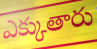
ఎక్కుతారు